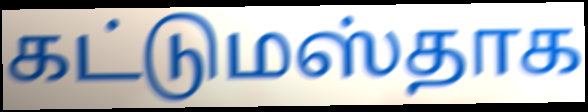
கட்டுமஸ்தாக